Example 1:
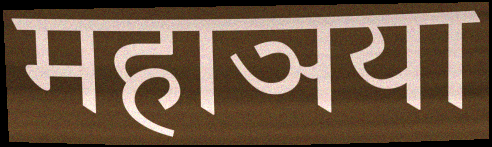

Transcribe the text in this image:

महाञया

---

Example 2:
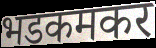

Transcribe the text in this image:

भडकमकर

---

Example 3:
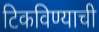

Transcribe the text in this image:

टिकविण्याची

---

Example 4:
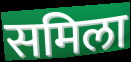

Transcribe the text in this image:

समिला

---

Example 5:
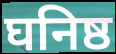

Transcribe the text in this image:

घनिष्ठ